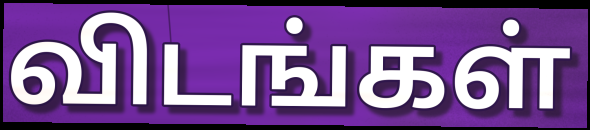
விடங்கள்